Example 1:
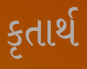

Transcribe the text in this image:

કૃતાર્થ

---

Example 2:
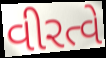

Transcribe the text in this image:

વીરત્વે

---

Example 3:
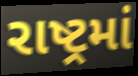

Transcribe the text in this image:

રાષ્ટ્રમાં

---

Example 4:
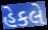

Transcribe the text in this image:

હેકલે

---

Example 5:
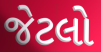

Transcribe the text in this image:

જેટલો